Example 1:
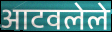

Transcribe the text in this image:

आटवलेले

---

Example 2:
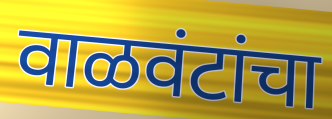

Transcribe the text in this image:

वाळवंटांचा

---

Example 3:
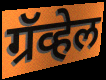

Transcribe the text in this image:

ग्रॅव्हेल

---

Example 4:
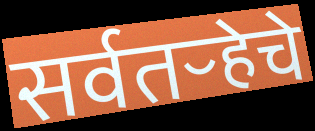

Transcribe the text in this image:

सर्वतऱ्हेचे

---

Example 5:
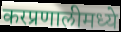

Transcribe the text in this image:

करप्रणालीमध्ये